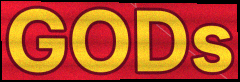
GODs